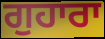
ਗੁਹਾਰਾ